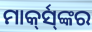
ମାର୍କ୍‍ସ୍‍ଙ୍କର